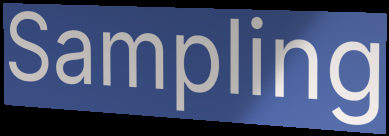
Sampling